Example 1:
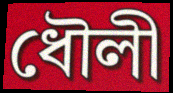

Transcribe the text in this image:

ধৌলী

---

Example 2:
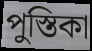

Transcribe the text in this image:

পুস্তিকা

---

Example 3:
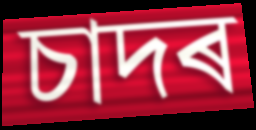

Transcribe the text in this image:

চাদৰ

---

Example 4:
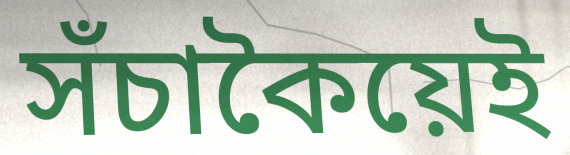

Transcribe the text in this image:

সঁচাকৈয়েই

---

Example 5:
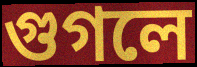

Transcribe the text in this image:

গুগলে